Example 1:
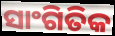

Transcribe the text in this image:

ସାଂଗିତିକ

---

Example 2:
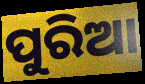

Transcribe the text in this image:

ପୁରିଆ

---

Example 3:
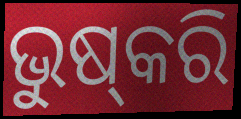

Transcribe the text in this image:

ଭୁଷ୍‍କରି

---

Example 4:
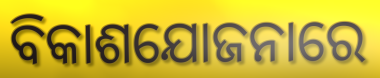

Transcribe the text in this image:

ବିକାଶଯୋଜନାରେ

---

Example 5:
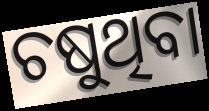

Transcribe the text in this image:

ଚଷୁଥିବା